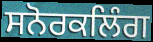
ਸਨੋਰਕਲਿੰਗ